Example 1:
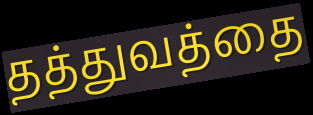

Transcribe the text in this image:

தத்துவத்தை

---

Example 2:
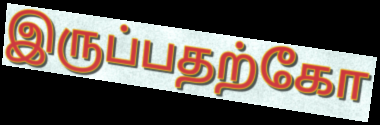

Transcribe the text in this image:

இருப்பதற்கோ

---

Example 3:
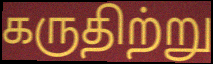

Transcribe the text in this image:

கருதிற்று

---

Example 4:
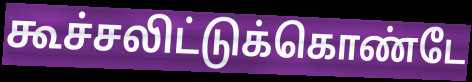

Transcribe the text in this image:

கூச்சலிட்டுக்கொண்டே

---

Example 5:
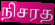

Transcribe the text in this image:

நிசரத